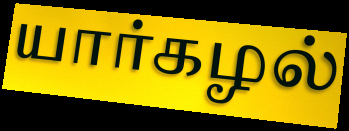
யார்கழல்